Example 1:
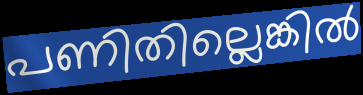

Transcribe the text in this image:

പണിതില്ലെങ്കിൽ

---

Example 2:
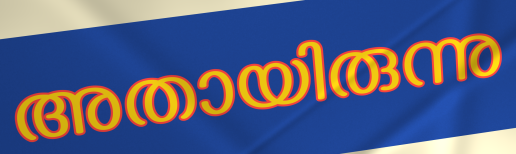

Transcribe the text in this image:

അതായിരുന്നു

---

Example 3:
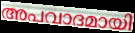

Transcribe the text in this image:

അപവാദമായി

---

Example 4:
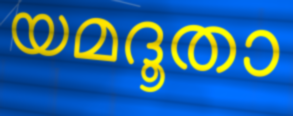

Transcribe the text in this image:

യമദൂതാ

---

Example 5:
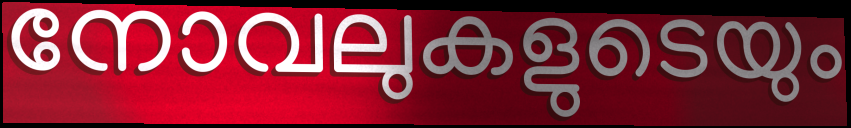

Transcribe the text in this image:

നോവലുകളുടെയും